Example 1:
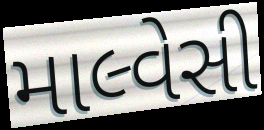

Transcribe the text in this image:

માલ્વેસી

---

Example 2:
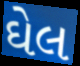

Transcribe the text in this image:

ઘેલ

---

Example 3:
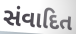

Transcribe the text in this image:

સંવાદિત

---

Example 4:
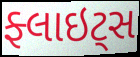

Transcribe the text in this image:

ફ્લાઇટ્સ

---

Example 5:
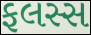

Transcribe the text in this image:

ફલસ્સ